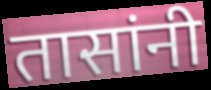
तासांनी